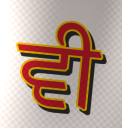
ਵੀ